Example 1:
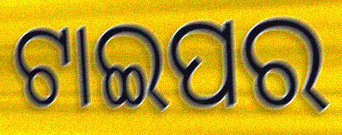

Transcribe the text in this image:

ଟାଇପର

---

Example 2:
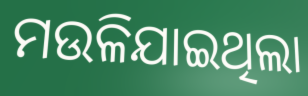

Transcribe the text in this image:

ମଉଳିଯାଇଥିଲା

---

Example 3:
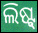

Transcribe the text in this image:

ଲିଷ୍ଟ୍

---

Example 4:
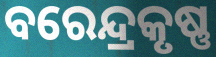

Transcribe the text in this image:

ବରେନ୍ଦ୍ରକୃଷ୍ଣ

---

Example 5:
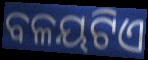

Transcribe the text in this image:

ବଳୟଟିଏ